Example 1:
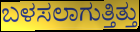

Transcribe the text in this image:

ಬಳಸಲಾಗುತ್ತಿತ್ತು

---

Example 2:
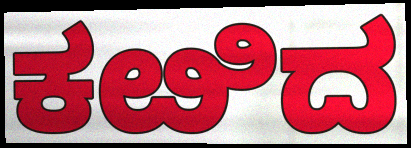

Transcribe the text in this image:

ಕೞಿದ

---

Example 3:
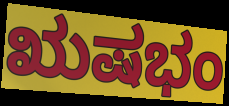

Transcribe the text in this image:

ಋಷಭಂ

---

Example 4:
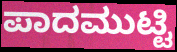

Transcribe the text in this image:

ಪಾದಮುಟ್ಟಿ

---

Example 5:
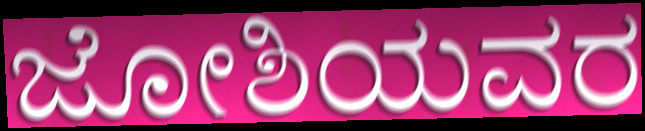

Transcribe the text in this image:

ಜೋಶಿಯವರ